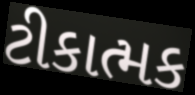
ટીકાત્મક